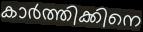
കാർത്തിക്കിനെ